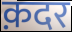
क़दर